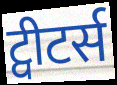
ट्वीटर्स